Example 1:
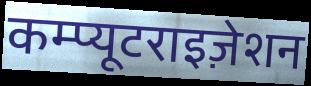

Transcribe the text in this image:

कम्प्यूटराइज़ेशन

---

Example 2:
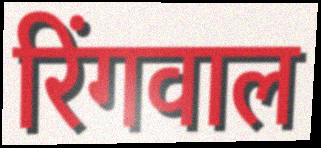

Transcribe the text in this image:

रिंगवाल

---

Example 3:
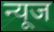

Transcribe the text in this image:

न्‍यूज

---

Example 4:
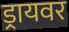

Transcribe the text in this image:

ड्रायवर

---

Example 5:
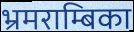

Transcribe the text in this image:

भ्रमराम्बिका